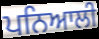
ਪਨਿਆਲੀ